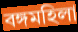
বঙ্গমহিলা